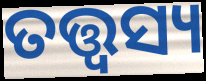
ତତ୍ତ୍ୱସ୍ୟ